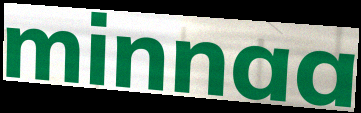
minnaa